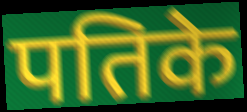
पतिके